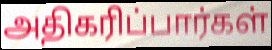
அதிகரிப்பார்கள்